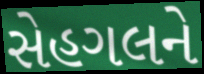
સેહગલને